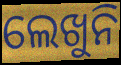
ଲେଖୁନି